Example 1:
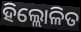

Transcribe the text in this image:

ହିଲ୍ଲୋଳିତ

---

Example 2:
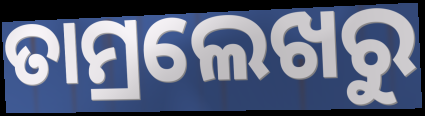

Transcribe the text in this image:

ତାମ୍ରଲେଖରୁ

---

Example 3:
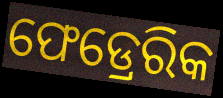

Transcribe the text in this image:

ଫେଡ୍ରେରିକ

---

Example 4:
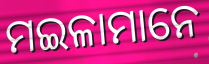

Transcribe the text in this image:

ମଇଳାମାନେ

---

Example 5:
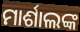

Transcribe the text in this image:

ମାର୍ଶାଲଙ୍କ